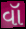
વૉ